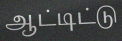
ஆட்டிட்டு